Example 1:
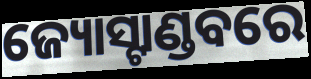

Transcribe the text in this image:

ଜ୍ୟୋସ୍ଟାଣ୍ଡବରେ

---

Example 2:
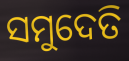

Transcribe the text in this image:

ସମୁଦେତି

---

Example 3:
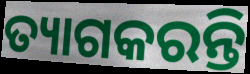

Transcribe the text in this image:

ତ୍ୟାଗକରନ୍ତି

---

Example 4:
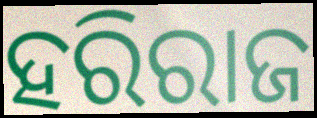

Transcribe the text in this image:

ହରିରାଜ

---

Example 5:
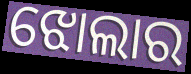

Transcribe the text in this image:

ଝୋଲାର